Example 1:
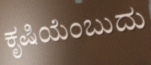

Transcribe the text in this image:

ಕೃಷಿಯೆಂಬುದು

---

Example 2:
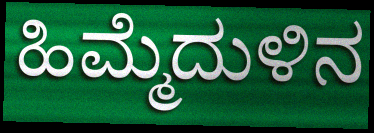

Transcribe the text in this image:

ಹಿಮ್ಮೆದುಳಿನ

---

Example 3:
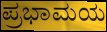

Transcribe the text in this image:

ಪ್ರಭಾಮಯ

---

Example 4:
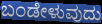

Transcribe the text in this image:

ಬಂಡೇಳುವುದು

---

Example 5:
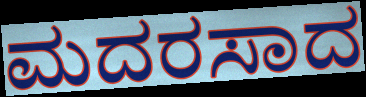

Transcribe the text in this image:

ಮದರಸಾದ